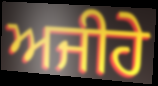
ਅਜੀਹੇ